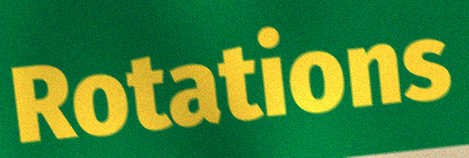
Rotations